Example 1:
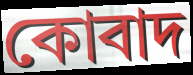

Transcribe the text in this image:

কোবাদ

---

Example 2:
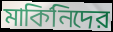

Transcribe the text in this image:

মার্কিনিদের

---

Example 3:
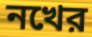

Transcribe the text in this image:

নখের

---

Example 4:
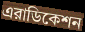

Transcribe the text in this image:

এরাডিকেশন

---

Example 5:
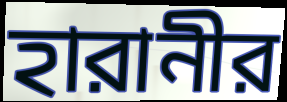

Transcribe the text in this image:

হারানীর